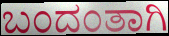
ಬಂದಂತಾಗಿ